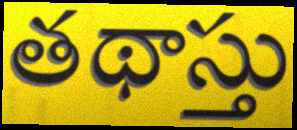
తథాస్తు